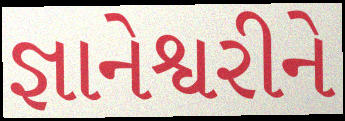
જ્ઞાનેશ્વરીને